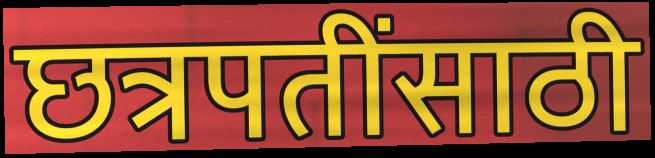
छत्रपतींसाठी